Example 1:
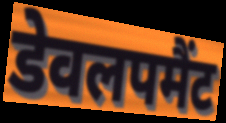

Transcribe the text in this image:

डेवलपमैंट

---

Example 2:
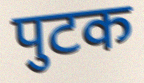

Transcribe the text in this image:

पुटक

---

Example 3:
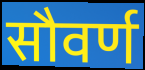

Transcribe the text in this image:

सौवर्ण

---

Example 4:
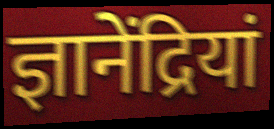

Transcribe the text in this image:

ज्ञानेंद्रियां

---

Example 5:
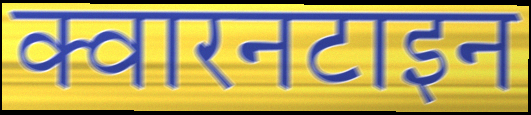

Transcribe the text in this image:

क्वारनटाइन